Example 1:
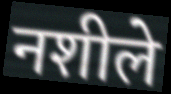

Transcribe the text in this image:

नशीले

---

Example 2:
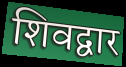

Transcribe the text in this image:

शिवद्वार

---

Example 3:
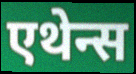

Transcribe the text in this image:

एथेन्स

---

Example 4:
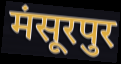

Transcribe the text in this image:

मंसूरपुर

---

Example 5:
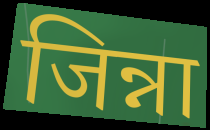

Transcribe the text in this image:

जिन्ना